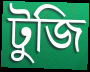
টুজি